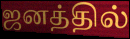
ஜனத்தில்